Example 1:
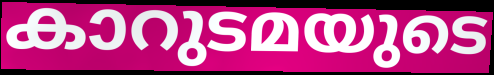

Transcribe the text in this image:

കാറുടമയുടെ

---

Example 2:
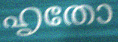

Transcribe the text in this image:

ഹൃതോ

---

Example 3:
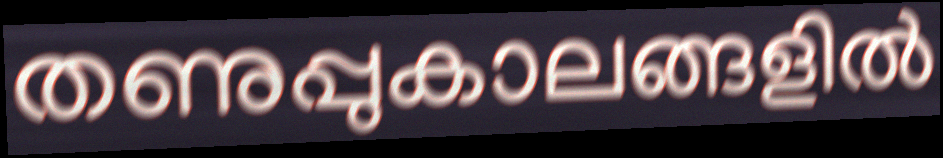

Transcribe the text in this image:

തണുപ്പുകാലങ്ങളിൽ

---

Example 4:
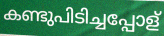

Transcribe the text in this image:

കണ്ടുപിടിച്ചപ്പോള്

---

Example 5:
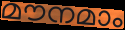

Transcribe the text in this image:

മൗനമാം